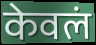
केवलं